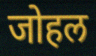
जोहल